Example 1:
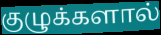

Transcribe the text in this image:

குழுக்களால்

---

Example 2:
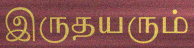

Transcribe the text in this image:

இருதயரும்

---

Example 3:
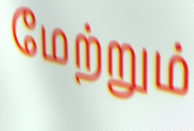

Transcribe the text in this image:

மேற்றும்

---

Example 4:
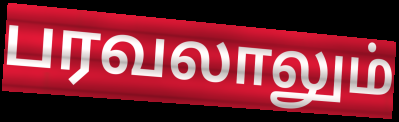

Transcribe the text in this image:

பரவலாலும்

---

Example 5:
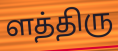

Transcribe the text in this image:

ளத்திரு